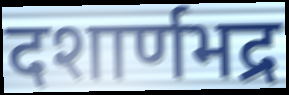
दशार्णभद्र